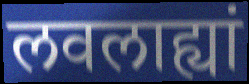
लवलाह्यां